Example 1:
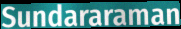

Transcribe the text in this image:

Sundararaman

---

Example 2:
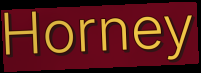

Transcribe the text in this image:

Horney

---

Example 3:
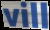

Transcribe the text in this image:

vill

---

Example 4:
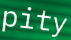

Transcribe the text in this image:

pity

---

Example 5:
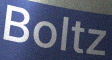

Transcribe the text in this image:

Boltz